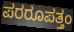
ಪರರೂಪತ್ತಂ